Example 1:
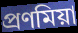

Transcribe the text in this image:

প্রণমিয়া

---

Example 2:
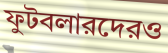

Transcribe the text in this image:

ফুটবলারদেরও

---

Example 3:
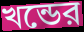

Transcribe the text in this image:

খন্ডের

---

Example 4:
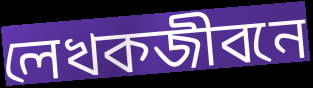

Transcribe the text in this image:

লেখকজীবনে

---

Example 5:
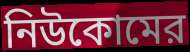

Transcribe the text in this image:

নিউকোমের